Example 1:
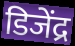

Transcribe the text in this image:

डिजेंद्र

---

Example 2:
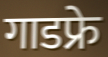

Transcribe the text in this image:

गाडफ्रे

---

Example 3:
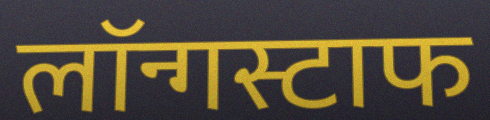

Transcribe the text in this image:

लॉन्गस्टाफ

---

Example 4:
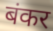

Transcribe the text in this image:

बंकर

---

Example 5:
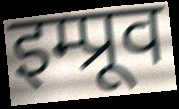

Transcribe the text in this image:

इम्प्रूव